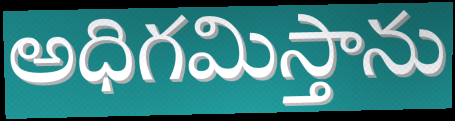
అధిగమిస్తాను